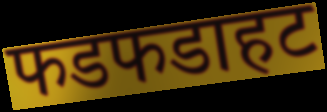
फडफडाहट